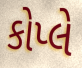
કોપ્લે